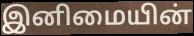
இனிமையின்